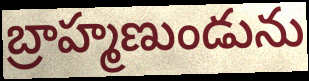
బ్రాహ్మణుండును